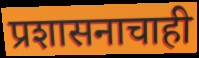
प्रशासनाचाही